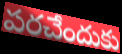
పరచేందుకు